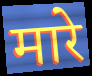
मारे